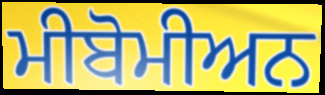
ਮੀਬੋਮੀਅਨ